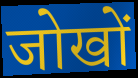
जोखों